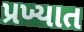
પ્રખ્યાત